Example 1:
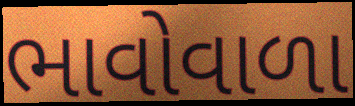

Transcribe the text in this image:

ભાવોવાળા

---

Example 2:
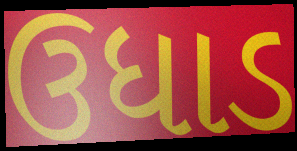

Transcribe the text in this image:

ઉધાડ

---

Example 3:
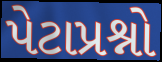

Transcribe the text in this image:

પેટાપ્રશ્નો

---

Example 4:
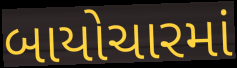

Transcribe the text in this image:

બાયોચારમાં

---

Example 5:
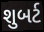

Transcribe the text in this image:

શુબર્ટ